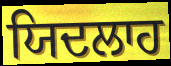
ਯਿਦਲਾਹ